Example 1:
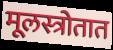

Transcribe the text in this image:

मूलस्त्रोतात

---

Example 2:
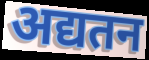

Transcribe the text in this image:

अद्यतन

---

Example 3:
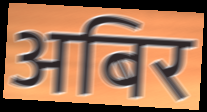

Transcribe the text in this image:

अबिर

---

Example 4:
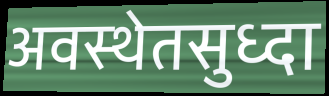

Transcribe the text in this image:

अवस्थेतसुध्दा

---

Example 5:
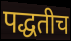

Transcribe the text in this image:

पद्धतीच